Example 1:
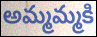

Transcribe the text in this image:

అమ్మమ్మకి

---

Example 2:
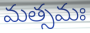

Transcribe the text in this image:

మత్సమః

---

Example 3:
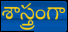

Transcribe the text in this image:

శాస్త్రంగా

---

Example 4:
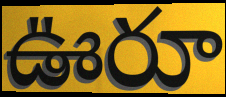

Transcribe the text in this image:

ఊరూ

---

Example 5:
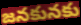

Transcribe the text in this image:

జనకునకు